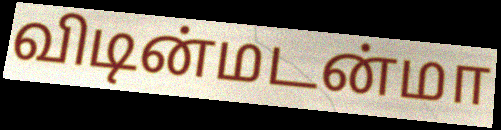
விடின்மடன்மா